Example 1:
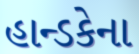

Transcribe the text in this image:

હાન્ડકેના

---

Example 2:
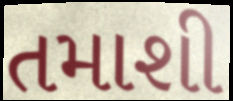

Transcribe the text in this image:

તમાશી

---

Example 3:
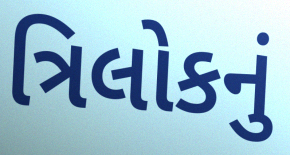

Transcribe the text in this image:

ત્રિલોકનું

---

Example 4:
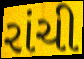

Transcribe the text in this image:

રાંચી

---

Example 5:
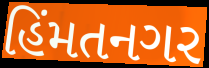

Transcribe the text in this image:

હિંમતનગર